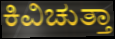
ಕಿವಿಚುತ್ತಾ